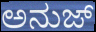
ಅನುಜ್